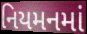
નિયમનમાં